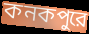
কনকপুরে